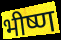
भीष्ण